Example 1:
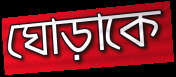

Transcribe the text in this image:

ঘোড়াকে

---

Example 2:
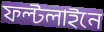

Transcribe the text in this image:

ফল্টলাইনে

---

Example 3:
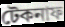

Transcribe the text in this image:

টেকনাফ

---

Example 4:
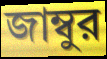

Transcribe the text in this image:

জাম্বুর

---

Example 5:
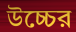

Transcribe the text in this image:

উচ্চের